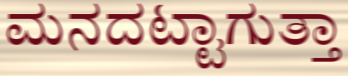
ಮನದಟ್ಟಾಗುತ್ತಾ